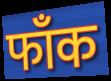
फाँक